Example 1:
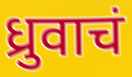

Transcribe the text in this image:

ध्रुवाचं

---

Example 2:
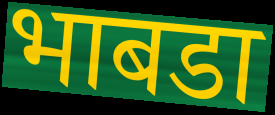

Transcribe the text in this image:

भाबडा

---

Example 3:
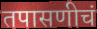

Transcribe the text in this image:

तपासणीचं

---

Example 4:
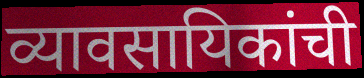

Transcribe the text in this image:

व्यावसायिकांची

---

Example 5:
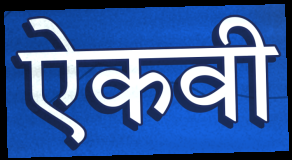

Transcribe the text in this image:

ऐकवी